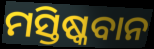
ମସ୍ତିଷ୍କବାନ